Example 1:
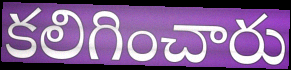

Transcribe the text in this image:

కలిగించారు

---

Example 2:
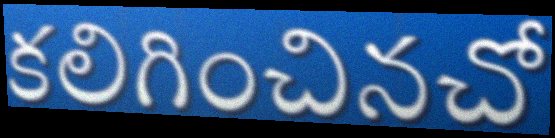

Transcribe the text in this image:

కలిగించినచో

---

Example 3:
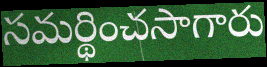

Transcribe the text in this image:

సమర్థించసాగారు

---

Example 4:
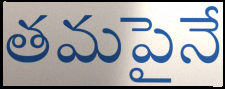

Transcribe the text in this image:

తమపైనే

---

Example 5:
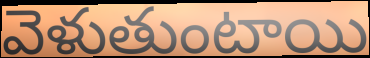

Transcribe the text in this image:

వెళుతుంటాయి